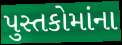
પુસ્તકોમાંના